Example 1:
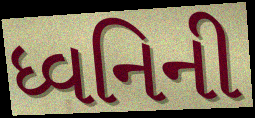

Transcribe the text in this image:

ધ્વનિની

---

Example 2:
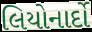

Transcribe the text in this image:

લિયોનાર્દો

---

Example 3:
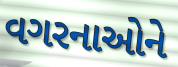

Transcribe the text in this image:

વગરનાઓને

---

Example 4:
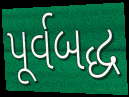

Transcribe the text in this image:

પૂર્વબદ્ધ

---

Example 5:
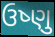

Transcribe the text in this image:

ઉષ્ણુ